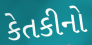
કેતકીનો